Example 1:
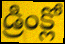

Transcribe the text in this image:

డ్రింక్లో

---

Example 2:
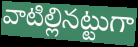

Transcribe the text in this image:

వాటిల్లినట్టుగా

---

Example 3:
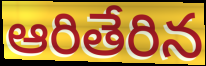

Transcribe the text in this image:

ఆరితేరిన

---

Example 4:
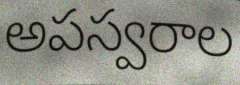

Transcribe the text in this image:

అపస్వరాల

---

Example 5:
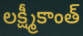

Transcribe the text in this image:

లక్ష్మీకాంత్